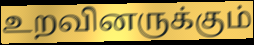
உறவினருக்கும்